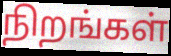
நிறங்கள்